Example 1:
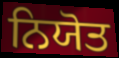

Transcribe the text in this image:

ਨਿਯੋਤ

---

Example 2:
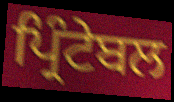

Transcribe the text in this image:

ਪ੍ਰਿੰਟੇਬਲ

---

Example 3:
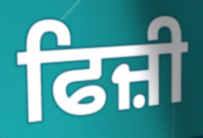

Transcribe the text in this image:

ਫਿਜ਼ੀ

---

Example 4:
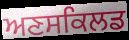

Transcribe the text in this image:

ਅਣਸਕਿਲਡ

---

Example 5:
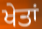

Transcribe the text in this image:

ਖੇਤਾਂ